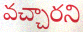
వచ్చారని